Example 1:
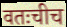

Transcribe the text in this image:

वतःचीच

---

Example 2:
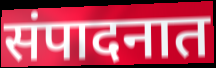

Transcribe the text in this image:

संपादनात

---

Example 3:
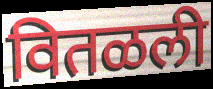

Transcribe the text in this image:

वितळली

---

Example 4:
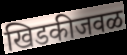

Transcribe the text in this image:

खिडकीजवळ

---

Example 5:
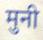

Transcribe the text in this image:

मुनी